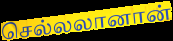
செல்லலானான்